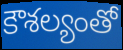
కౌశల్యంతో